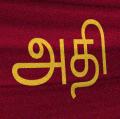
அதி